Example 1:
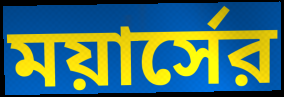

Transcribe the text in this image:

ময়ার্সের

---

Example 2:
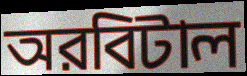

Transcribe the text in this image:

অরবিটাল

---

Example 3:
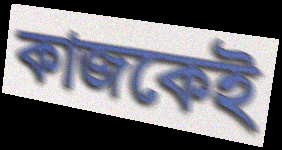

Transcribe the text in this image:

কাজকেই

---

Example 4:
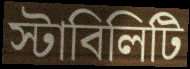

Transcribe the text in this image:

স্টাবিলিটি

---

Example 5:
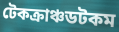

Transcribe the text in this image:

টেকক্রাঞ্চডটকম